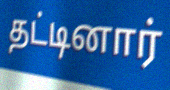
தட்டினார்